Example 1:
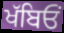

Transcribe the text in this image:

ਖੱਬਿਓਂ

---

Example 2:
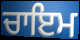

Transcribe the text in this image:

ਚਾਇਮ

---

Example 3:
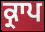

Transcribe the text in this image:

ਕ੍ਰਾਪ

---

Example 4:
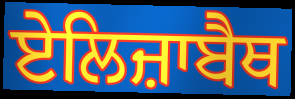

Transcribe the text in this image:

ਏਲਿਜ਼ਾਬੈਥ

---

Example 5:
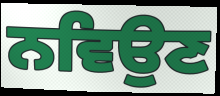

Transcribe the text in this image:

ਨਵਿਉਣ